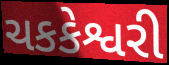
ચકકેશ્વરી